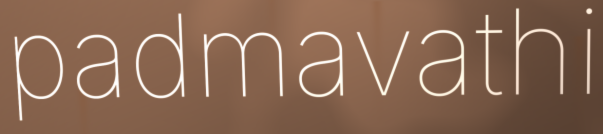
padmavathi